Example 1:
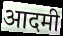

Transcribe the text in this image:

आदमी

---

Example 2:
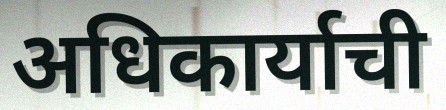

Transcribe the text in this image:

अधिकार्याची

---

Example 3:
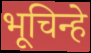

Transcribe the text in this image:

भूचिन्हे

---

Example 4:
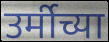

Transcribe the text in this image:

उर्मीच्या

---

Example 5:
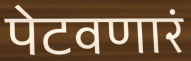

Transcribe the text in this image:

पेटवणारं